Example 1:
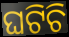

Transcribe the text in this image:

ଘଟିଚି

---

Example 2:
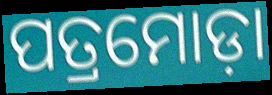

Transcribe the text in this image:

ପତ୍ରମୋଡ଼ା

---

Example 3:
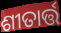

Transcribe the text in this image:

ଶୀତାର୍ତ୍ତ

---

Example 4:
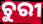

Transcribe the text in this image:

ଚୁରୀ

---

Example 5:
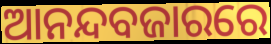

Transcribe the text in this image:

ଆନନ୍ଦବଜାରରେ